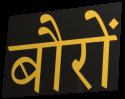
बौरों